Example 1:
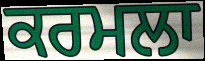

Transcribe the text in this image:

ਕਰਮਲਾ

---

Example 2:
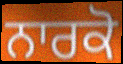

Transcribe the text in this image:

ਨਾਰਕੋ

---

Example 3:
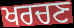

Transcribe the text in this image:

ਖਰਚਣ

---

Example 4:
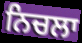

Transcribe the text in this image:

ਨਿਚਲਾ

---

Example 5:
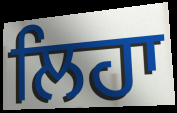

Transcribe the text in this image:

ਲਿਹਾ